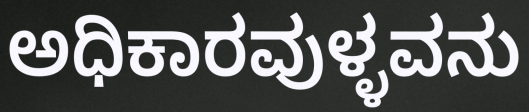
ಅಧಿಕಾರವುಳ್ಳವನು